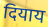
दियाय